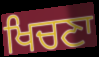
ਖਿਚਣਾ